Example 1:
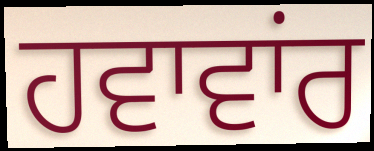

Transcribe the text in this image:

ਹਵਾਵਾਂਰ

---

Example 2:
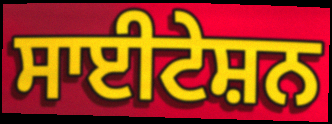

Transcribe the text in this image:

ਸਾਈਟੇਸ਼ਨ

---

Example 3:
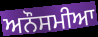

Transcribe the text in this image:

ਅਨੌਸਮੀਆ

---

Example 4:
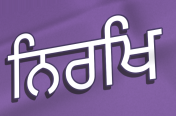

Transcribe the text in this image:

ਨਿਰਖਿ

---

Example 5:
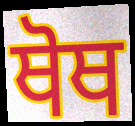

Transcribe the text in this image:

ਥੋਥ